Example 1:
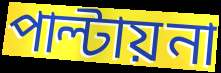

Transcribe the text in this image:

পাল্টায়না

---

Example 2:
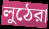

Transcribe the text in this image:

লুঠেরা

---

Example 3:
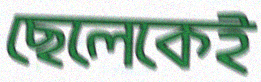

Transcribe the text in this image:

ছেলেকেই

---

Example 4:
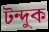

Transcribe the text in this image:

টন্দুক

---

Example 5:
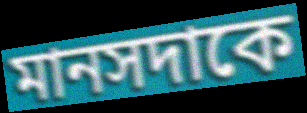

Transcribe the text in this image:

মানসদাকে